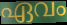
ഏവം